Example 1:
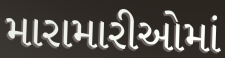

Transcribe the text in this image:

મારામારીઓમાં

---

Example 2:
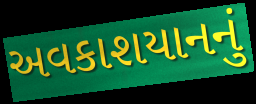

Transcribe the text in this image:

અવકાશયાનનું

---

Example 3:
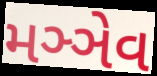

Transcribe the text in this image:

મઞ્ઞેવ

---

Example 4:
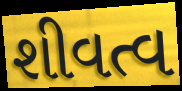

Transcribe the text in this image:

શીવત્વ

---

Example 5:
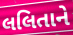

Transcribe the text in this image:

લલિતાને